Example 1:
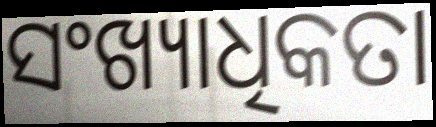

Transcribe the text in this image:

ସଂଖ୍ୟାଧିକତା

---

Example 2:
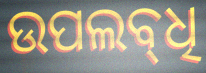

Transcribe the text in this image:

ଉପଲବ୍‌ଧି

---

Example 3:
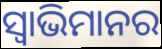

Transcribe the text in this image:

ସ୍ଵାଭିମାନର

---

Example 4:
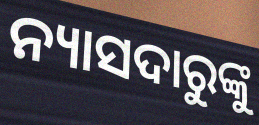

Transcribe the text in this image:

ନ୍ୟାସଦାରୁଙ୍କୁ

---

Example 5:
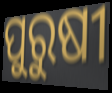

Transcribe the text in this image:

ପୁରୁଷୀ